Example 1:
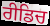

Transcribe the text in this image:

ਰੀਡਿਚ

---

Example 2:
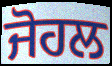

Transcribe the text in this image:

ਜੋਹਲ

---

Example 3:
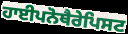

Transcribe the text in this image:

ਹਾਈਪਨੋਥੈਰੇਪਿਸਟ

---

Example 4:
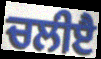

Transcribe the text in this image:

ਚਲੀੲੈ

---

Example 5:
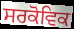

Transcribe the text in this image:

ਸਰਕੋਵਿਕ